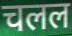
चलल